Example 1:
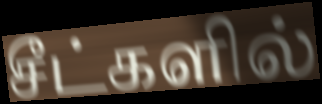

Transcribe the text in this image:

சீட்களில்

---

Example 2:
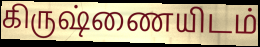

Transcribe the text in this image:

கிருஷ்ணையிடம்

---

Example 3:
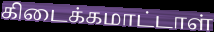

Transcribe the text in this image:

கிடைக்கமாட்டாள்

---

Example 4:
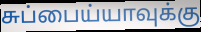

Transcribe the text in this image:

சுப்பைய்யாவுக்கு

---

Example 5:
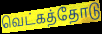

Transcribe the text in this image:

வெட்கத்தோடு